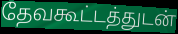
தேவகூட்டத்துடன்